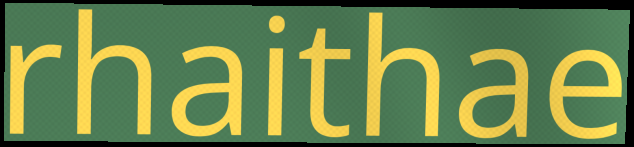
rhaithae